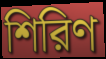
শিরিণ